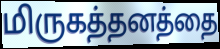
மிருகத்தனத்தை